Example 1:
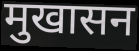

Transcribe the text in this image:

मुखासन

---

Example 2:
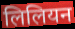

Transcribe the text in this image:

लिलियन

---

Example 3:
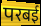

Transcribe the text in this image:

परबई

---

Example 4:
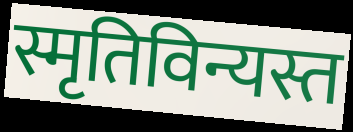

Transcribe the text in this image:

स्मृतिविन्यस्त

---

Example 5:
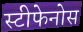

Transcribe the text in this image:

स्टीफेनोस